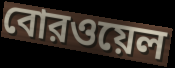
বোরওয়েল